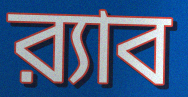
র‍্যাব